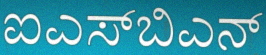
ಐಎಸ್‌ಬಿಎನ್